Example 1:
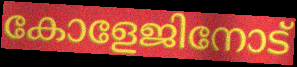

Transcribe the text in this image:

കോളേജിനോട്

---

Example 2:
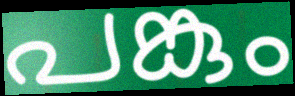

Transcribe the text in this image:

പങ്കും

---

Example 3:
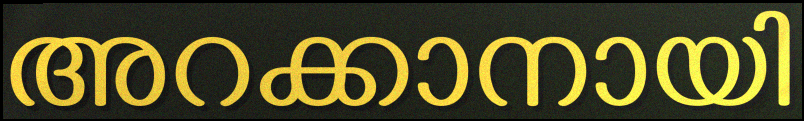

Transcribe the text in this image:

അറക്കാനായി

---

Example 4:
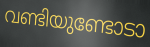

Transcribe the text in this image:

വണ്ടിയുണ്ടോടാ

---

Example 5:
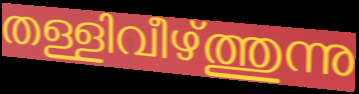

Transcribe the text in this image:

തള്ളിവീഴ്ത്തുന്നു